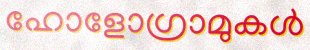
ഹോളോഗ്രാമുകൾ